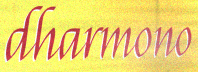
dharmono